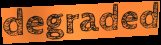
degraded